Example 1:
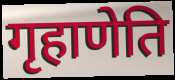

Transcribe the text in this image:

गृहाणेति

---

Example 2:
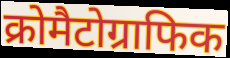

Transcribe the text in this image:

क्रोमैटोग्राफिक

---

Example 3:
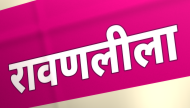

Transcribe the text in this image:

रावणलीला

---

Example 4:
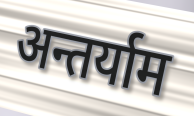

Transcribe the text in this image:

अन्तर्याम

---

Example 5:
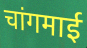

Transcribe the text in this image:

चांगमाई